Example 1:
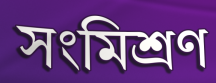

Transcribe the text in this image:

সংমিশ্রণ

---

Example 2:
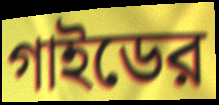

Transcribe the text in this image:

গাইডের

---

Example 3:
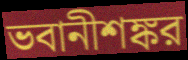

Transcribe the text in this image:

ভবানীশঙ্কর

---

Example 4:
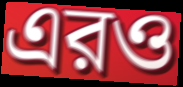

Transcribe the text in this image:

এরও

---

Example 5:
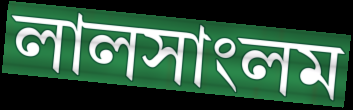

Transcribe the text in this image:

লালসাংলম